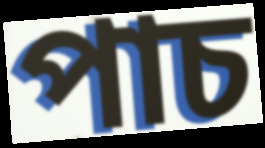
পাচ